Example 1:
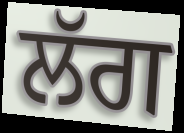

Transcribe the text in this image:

ਲੱਗ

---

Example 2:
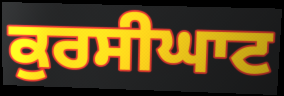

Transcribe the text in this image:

ਕੁਰਸੀਘਾਟ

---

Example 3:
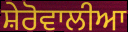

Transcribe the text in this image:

ਸ਼ੇਰੋਵਾਲੀਆ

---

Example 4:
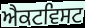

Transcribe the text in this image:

ਐਕਟਵਿਸਟ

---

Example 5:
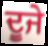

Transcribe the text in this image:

ਦੂਜੇ